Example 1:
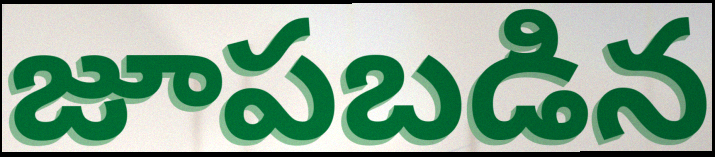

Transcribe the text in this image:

జూపబడిన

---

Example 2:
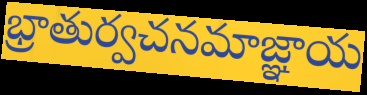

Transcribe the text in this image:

భ్రాతుర్వచనమాజ్ఞాయ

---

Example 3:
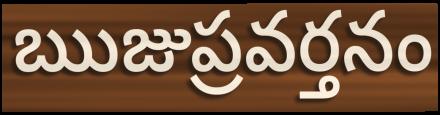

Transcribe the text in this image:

ఋజుప్రవర్తనం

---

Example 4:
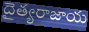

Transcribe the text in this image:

దైత్యరాజాయ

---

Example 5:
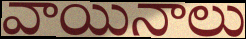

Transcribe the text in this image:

వాయినాలు